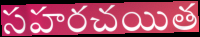
సహరచయిత